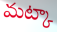
మట్కా